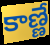
కాణ్ణే